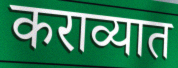
कराव्यात